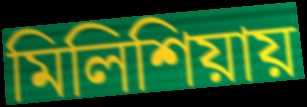
মিলিশিয়ায়